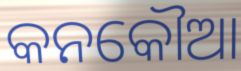
କନକୌଆ